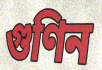
গুণিন